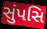
સુંપસિ